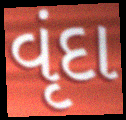
વૃંદા